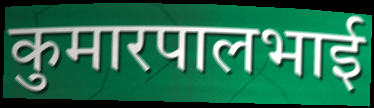
कुमारपालभाई